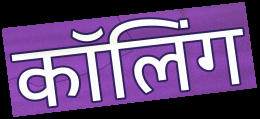
कॉलिंग